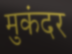
मुकंदर